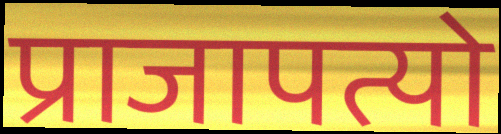
प्राजापत्यो